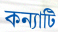
কন্যাটি